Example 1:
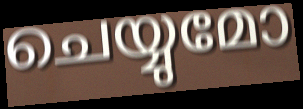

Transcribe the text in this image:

ചെയ്യുമോ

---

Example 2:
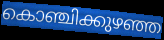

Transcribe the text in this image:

കൊഞ്ചിക്കുഴഞ്ഞ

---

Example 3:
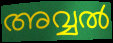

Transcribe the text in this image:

അവ്വൽ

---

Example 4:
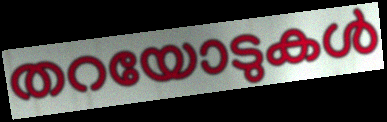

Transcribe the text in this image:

തറയോടുകൾ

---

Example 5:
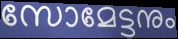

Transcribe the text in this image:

സോമേട്ടനും